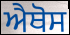
ਐਥੋਸ